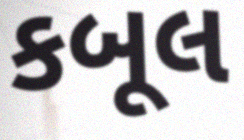
કબૂલ